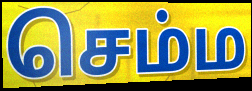
செம்ம